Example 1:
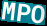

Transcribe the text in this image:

MPO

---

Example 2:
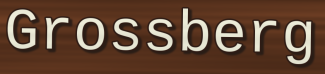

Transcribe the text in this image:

Grossberg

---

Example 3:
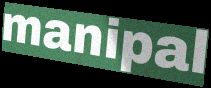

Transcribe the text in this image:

manipal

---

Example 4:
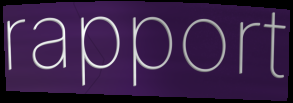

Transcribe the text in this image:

rapport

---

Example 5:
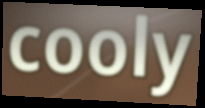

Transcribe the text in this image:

cooly